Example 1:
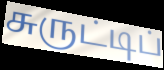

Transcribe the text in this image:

சுருட்டிப்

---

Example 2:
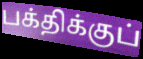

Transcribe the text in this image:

பக்திக்குப்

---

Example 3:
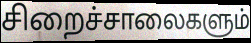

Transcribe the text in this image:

சிறைச்சாலைகளும்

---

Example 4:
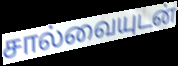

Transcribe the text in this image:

சால்வையுடன்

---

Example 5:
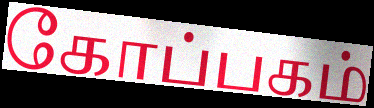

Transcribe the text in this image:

கோப்பகம்